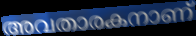
അവതാരകനാണ്